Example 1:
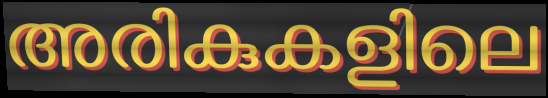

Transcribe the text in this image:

അരികുകളിലെ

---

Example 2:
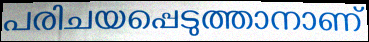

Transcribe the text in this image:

പരിചയപ്പെടുത്താനാണ്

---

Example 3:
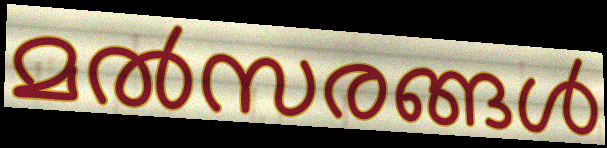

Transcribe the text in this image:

മൽസരങ്ങൾ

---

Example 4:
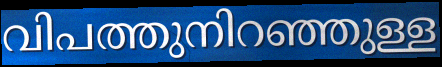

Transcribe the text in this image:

വിപത്തുനിറഞ്ഞുള്ള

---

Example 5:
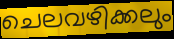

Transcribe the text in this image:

ചെലവഴിക്കലും